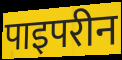
पाइपरीन